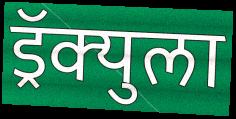
ड्रॅक्युला